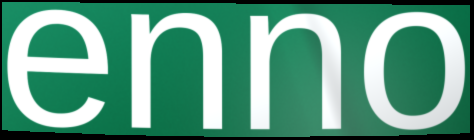
enno